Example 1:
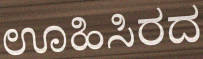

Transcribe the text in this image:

ಊಹಿಸಿರದ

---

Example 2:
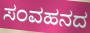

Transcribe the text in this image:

ಸಂವಹನದ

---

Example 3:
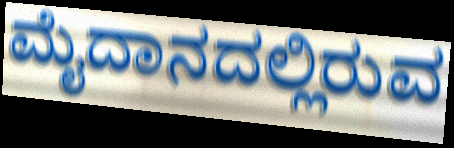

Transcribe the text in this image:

ಮೈದಾನದಲ್ಲಿರುವ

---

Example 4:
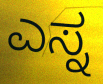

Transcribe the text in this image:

ಎಸ್ನ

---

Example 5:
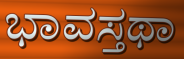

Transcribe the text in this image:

ಭಾವಸ್ತಥಾ